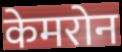
केमरोन